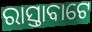
ରାସ୍ତାବାଟେ